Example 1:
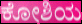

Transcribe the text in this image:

ಕೋಶಿಯ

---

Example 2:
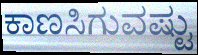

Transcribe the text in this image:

ಕಾಣಸಿಗುವಷ್ಟು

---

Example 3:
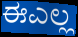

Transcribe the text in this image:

ಈಎಲ್ಲ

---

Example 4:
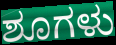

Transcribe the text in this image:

ಶೂಗಳು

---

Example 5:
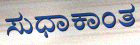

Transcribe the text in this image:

ಸುಧಾಕಾಂತ